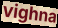
vighna